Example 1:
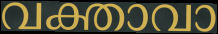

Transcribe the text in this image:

വക്താവാ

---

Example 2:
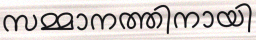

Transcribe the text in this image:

സമ്മാനത്തിനായി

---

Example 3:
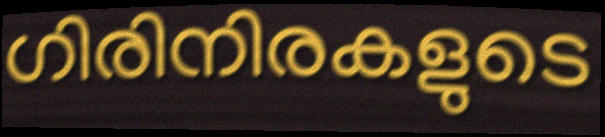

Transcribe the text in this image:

ഗിരിനിരകളുടെ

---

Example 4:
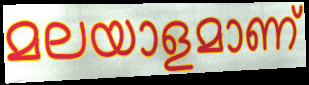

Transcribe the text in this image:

മലയാളമാണ്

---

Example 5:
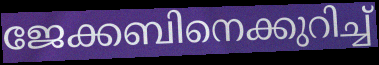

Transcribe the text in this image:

ജേക്കബിനെക്കുറിച്ച്